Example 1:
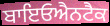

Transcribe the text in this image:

ਬਾਇਓਐਨਟੈਕ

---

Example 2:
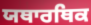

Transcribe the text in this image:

ਯਥਾਰਥਿਕ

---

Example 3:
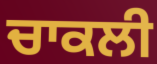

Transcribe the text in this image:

ਚਾਕਲੀ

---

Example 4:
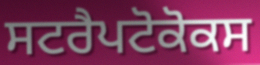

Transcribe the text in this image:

ਸਟਰੈਪਟੋਕੋਕਸ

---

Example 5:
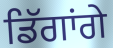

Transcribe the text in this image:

ਡਿੱਗਾਂਗੇ